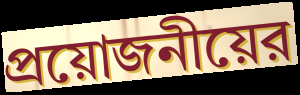
প্রয়োজনীয়ের